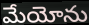
మేయోను